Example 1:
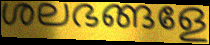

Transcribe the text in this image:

ശലഭങ്ങളേ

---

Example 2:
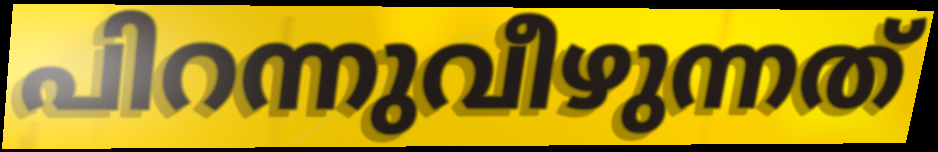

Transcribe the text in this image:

പിറന്നുവീഴുന്നത്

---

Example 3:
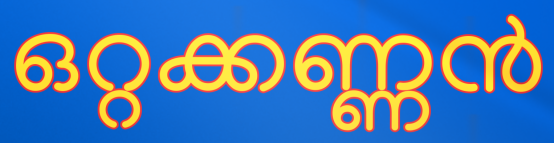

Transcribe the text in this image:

ഒറ്റക്കണ്ണൻ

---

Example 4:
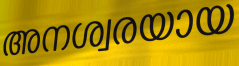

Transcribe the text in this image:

അനശ്വരയായ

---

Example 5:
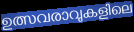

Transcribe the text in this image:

ഉത്സവരാവുകളിലെ